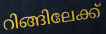
റിങ്ങിലേക്ക്